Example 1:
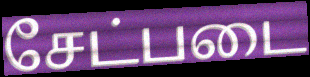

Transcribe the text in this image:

சேட்படை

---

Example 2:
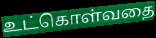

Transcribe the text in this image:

உட்கொள்வதை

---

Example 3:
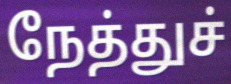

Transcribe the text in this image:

நேத்துச்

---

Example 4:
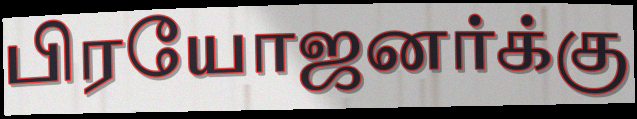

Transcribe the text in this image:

பிரயோஜனர்க்கு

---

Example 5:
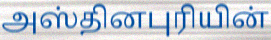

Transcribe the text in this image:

அஸ்தினபுரியின்